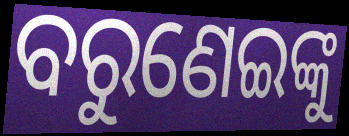
ବରୁଣେଇଙ୍କୁ